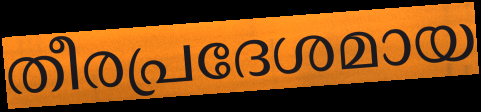
തീരപ്രദേശമായ